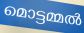
മൊട്ടമ്മൽ